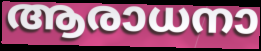
ആരാധനാ